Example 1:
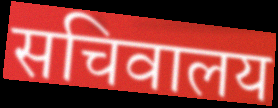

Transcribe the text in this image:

सचिवालय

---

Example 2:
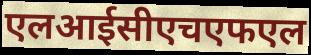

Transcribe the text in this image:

एलआईसीएचएफएल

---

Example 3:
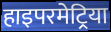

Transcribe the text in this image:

हाइपरमेट्रिया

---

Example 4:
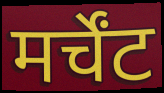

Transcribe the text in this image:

मर्चेंट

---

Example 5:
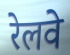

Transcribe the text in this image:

रेलवे